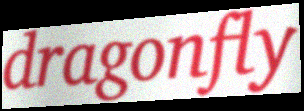
dragonfly